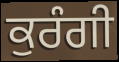
ਕੁਰੰਗੀ